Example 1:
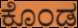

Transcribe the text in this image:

ಕೊಂಡ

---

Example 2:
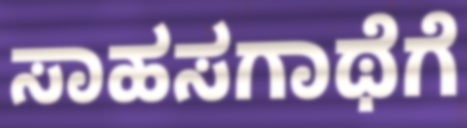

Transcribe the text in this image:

ಸಾಹಸಗಾಥೆಗೆ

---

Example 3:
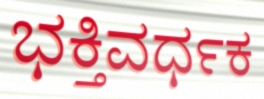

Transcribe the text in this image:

ಭಕ್ತಿವರ್ಧಕ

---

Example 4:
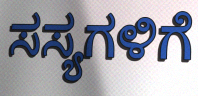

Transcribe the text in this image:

ಸಸ್ಯಗಳಿಗೆ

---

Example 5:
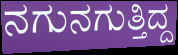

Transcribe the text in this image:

ನಗುನಗುತ್ತಿದ್ದ